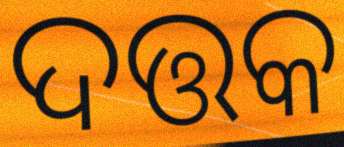
ଦତ୍ତକ